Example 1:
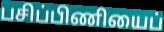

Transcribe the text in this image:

பசிப்பிணியைப்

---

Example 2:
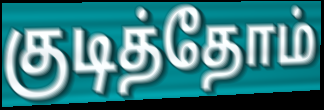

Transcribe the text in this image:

குடித்தோம்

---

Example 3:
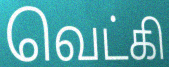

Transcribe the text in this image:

வெட்கி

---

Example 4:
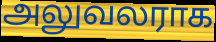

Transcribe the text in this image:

அலுவலராக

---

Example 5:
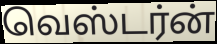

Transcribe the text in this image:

வெஸ்டர்ன்